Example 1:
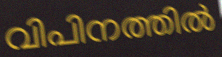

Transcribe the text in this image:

വിപിനത്തിൽ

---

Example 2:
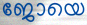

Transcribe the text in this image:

ജോയെ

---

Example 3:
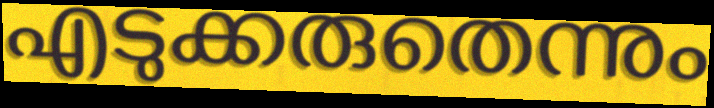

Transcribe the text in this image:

എടുക്കരുതെന്നും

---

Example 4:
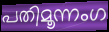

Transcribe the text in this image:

പതിമൂന്നംഗ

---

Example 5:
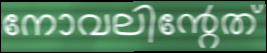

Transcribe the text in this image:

നോവലിന്റേത്